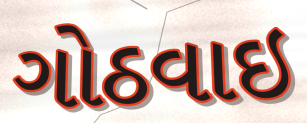
ગોઠવાઇ